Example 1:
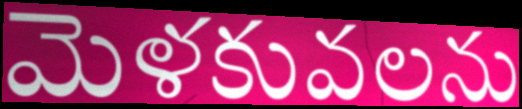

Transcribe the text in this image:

మెళకువలను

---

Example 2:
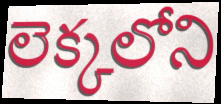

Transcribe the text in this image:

లెక్కలోని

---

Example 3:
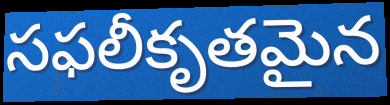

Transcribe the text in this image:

సఫలీకృతమైన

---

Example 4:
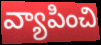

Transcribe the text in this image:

వ్యాపించి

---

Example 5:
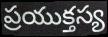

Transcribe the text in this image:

ప్రయుక్తస్య